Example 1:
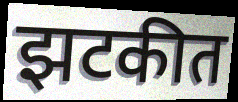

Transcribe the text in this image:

झटकीत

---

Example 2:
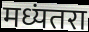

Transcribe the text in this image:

मध्यंतरा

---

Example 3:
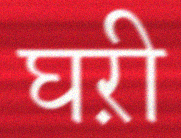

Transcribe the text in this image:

घऱी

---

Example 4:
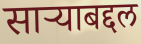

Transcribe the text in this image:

साऱ्याबद्दल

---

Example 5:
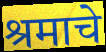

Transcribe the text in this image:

श्रमाचे